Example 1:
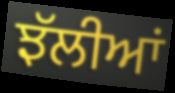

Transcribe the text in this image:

ਝੱਲੀਆਂ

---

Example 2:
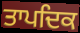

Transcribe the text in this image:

ਤਾਪਦਿਕ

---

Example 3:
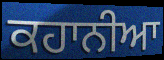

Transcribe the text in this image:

ਕਹਾਨੀਆ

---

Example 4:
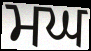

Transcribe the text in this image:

ਮਘ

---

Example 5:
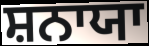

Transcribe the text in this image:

ਸ਼ਨਾਯਾ